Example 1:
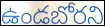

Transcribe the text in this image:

ఉండబోరని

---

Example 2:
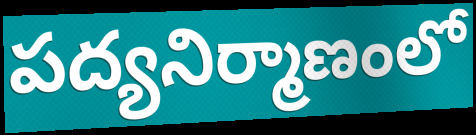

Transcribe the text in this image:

పద్యనిర్మాణంలో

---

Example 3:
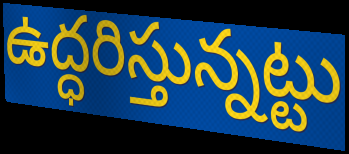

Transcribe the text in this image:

ఉద్ధరిస్తున్నట్టు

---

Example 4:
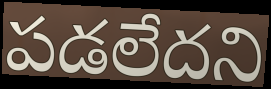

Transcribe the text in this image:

పడలేదని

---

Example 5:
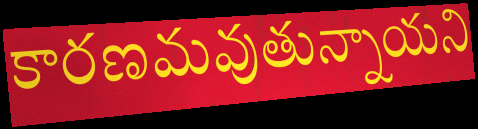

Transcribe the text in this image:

కారణమవుతున్నాయని